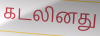
கடலினது